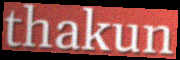
thakun